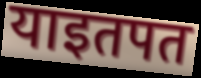
याइतपत